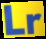
Lr